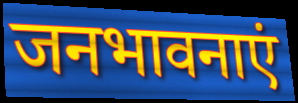
जनभावनाएं